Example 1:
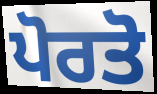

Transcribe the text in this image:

ਪੋਰਤੋ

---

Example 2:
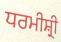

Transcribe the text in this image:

ਧਰਮੀਸ਼੍ਰੀ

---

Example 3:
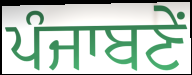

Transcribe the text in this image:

ਪੰਜਾਬਣੇਂ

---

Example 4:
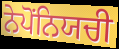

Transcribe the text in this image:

ਨੇਪੋਂਨਿਯਚੀ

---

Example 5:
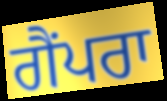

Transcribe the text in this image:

ਗੈਂਪਰਾ